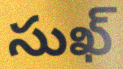
సుఖ్